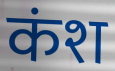
कंश